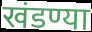
खंडण्या